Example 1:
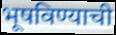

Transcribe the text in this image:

भूषविण्याची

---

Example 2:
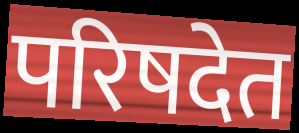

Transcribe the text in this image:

परिषदेत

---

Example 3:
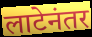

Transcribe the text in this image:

लाटेनंतर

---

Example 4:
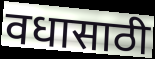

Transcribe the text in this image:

वधासाठी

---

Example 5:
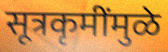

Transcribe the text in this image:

सूत्रकृमींमुळे